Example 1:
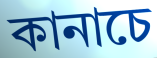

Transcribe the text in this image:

কানাচে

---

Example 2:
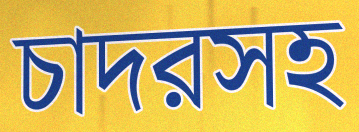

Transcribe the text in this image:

চাদরসহ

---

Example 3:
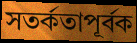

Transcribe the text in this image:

সতর্কতাপূর্বক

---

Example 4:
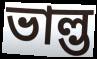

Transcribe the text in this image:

ভাল্ভ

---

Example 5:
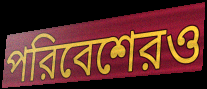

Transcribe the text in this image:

পরিবেশেরও